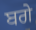
ਬਗੇ